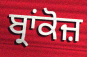
ਬ੍ਰਾਂਕੋਜ਼